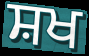
ਸ਼ਖ